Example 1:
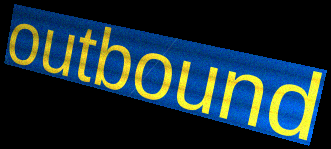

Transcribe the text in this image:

outbound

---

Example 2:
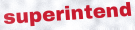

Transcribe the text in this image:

superintend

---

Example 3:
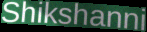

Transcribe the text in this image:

Shikshanni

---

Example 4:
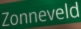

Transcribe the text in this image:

Zonneveld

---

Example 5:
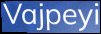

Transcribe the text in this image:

Vajpeyi